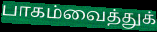
பாகம்வைத்துக்